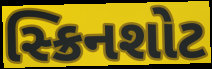
સ્ક્રિનશોટ